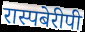
रास्पबेरीपी